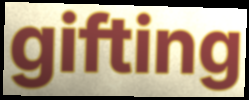
gifting